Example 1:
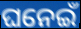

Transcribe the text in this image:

ଘନେଇଁ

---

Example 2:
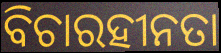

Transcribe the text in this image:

ବିଚାରହୀନତା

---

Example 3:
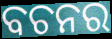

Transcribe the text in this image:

ବଚନର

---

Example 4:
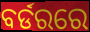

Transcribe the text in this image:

ବର୍ଡରରେ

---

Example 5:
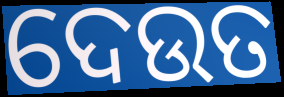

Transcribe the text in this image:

ଦେଉତ